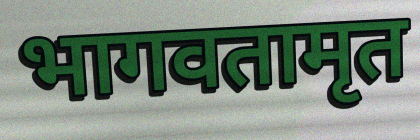
भागवतामृत